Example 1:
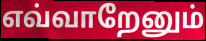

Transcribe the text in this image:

எவ்வாறேனும்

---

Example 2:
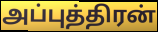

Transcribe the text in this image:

அப்புத்திரன்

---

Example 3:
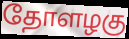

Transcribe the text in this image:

தோளழகு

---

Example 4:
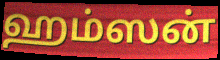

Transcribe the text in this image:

ஹம்ஸன்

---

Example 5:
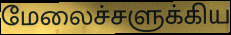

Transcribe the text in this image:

மேலைச்சளுக்கிய